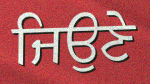
ਜਿਉਣੇ